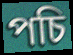
পচি